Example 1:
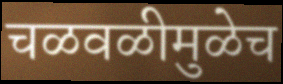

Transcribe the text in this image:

चळवळीमुळेच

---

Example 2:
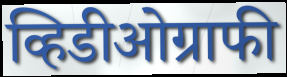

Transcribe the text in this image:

व्हिडीओग्राफी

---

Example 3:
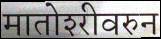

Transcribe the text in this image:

मातोश्रीवरुन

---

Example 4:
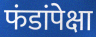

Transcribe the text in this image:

फंडांपेक्षा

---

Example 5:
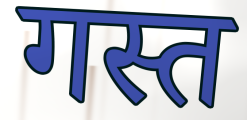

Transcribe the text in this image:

गस्त